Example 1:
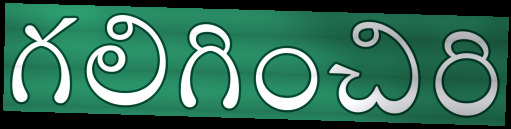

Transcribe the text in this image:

గలిగించిరి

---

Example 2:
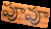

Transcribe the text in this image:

పూవూ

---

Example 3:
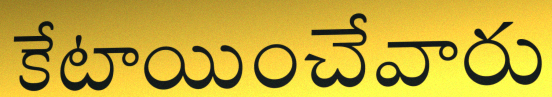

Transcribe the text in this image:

కేటాయించేవారు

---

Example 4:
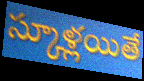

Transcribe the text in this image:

స్కూళ్లయితే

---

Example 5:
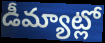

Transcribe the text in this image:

డీమ్యాట్లో